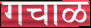
गचाळ